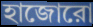
হাজোরো